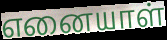
எனையாள்